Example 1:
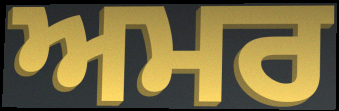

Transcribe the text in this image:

ਅਮਰ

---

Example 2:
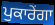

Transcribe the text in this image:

ਪੁਕਾਰੇਂਗਾ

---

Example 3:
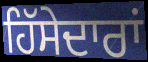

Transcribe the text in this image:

ਹਿੱਸੇਦਾਰਾਂ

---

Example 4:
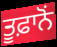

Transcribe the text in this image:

ਤੂਫ਼ਾਨੋਂ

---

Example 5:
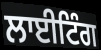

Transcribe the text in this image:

ਲਾਈਟਿੰਗ